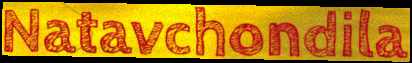
Natavchondila